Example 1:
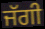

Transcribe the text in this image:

ਜੱਗੀ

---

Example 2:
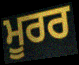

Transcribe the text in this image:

ਮੂਰਰ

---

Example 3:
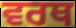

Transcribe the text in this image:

ਵਰਥ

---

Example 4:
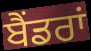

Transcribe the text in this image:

ਬੈਂਡਰਾਂ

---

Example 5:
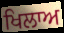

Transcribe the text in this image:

ਖਿਲਾਅ